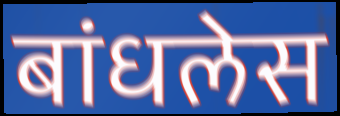
बांधलेस